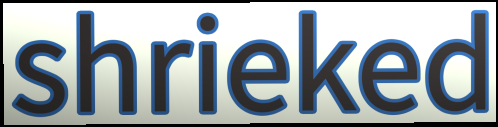
shrieked